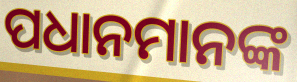
ପଧାନମାନଙ୍କ